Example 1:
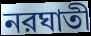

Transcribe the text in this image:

নরঘাতী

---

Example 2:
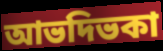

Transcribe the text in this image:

আভদিভকা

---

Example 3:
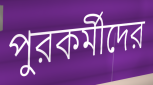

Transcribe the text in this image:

পুরকর্মীদের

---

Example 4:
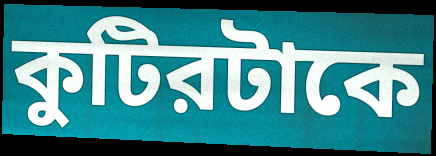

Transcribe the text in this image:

কুটিরটাকে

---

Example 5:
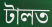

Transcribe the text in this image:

টালত